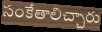
సంకేతాలిచ్చారు